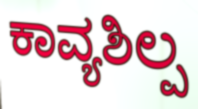
ಕಾವ್ಯಶಿಲ್ಪ